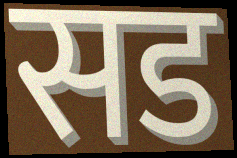
सड